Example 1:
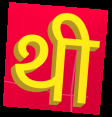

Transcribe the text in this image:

थी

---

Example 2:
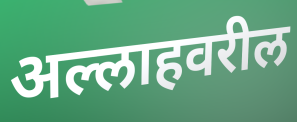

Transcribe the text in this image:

अल्लाहवरील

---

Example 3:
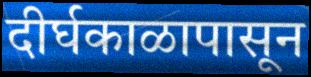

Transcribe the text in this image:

दीर्घकाळापासून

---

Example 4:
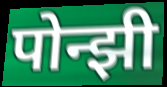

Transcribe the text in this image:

पोन्झी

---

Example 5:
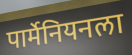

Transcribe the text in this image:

पार्मेनियनला